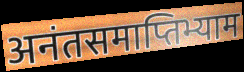
अनंतसमाप्तिभ्याम